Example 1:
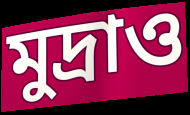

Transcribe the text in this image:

মুদ্রাও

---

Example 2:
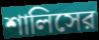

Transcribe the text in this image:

শালিসের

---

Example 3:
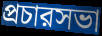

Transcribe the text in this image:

প্রচারসভা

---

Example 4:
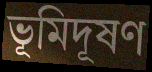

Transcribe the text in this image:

ভূমিদূষণ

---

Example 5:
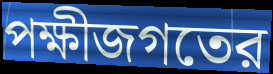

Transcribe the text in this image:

পক্ষীজগতের